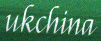
ukchina